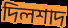
দিলশাদ